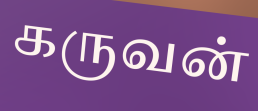
கருவன்